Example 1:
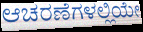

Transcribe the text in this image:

ಆಚರಣೆಗಳಲ್ಲಿಯೇ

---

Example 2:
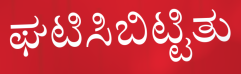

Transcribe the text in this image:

ಘಟಿಸಿಬಿಟ್ಟಿತು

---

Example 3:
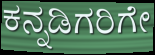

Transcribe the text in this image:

ಕನ್ನಡಿಗರಿಗೇ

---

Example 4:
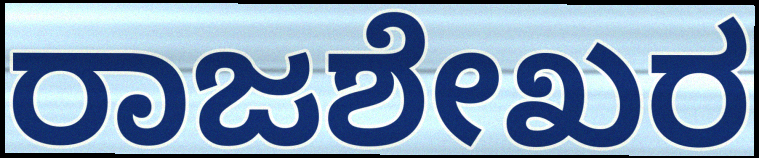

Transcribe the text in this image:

ರಾಜಶೇಖರ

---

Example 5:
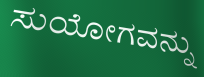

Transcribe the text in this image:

ಸುಯೋಗವನ್ನು